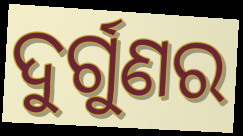
ଦୁର୍ଗୁଣର